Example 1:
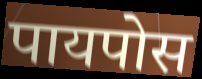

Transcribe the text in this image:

पायपोस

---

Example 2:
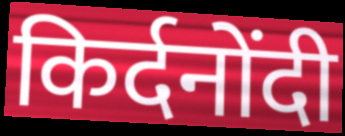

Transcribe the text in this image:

किर्दनोंदी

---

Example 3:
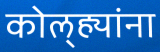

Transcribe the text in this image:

कोल्ह्यांना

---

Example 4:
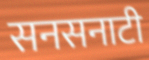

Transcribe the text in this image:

सनसनाटी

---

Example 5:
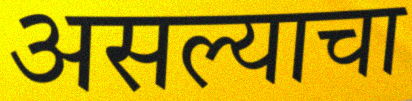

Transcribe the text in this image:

असल्‍याचा